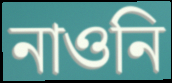
নাওনি